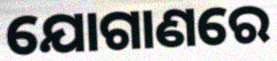
ଯୋଗାଣରେ